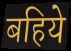
बहिये